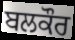
ਬਲਕੌਰ